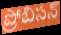
ప్రోబిసన్